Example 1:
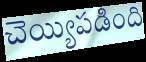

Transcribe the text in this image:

చెయ్యిపడింది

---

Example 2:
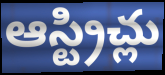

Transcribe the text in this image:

ఆస్ట్రిచ్లు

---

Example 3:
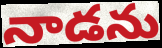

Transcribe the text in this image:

నాడను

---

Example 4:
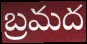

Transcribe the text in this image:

బ్రమద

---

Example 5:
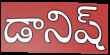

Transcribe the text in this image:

డానిష్